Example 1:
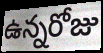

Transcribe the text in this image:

ఉన్నరోజు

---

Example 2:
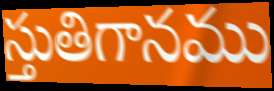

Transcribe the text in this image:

స్తుతిగానము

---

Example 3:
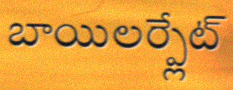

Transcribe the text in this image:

బాయిలర్ప్లేట్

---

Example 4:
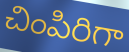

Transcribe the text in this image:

చింపిరిగా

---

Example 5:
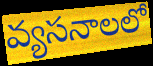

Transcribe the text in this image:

వ్యసనాలలో